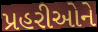
પ્રહરીઓને